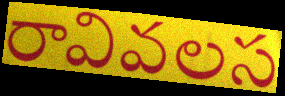
రావివలస